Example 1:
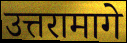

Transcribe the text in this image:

उत्तरामागे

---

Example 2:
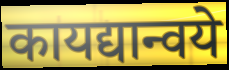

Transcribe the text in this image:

कायद्यान्वये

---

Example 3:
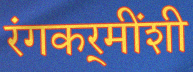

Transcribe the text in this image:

रंगकर्मींशी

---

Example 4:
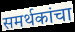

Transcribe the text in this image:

समर्थकांचा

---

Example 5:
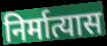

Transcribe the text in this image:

निर्मात्यास